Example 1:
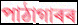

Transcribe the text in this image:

পাঠাগাৰৰ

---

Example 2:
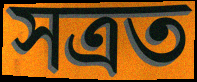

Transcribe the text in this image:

সত্ৰত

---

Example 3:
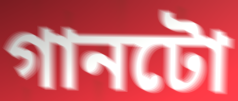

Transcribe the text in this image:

গানটো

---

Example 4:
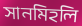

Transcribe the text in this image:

সানমিহলি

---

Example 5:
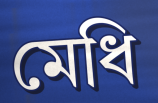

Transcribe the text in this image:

মেধি